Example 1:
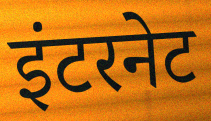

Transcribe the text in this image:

इंटरनेट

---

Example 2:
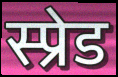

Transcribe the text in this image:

स्प्रेड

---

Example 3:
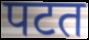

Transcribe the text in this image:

पटत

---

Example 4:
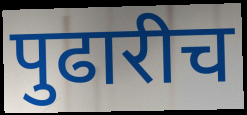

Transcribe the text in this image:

पुढारीच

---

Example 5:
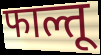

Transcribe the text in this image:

फाल्तू